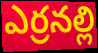
ఎర్రనల్లి